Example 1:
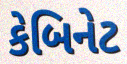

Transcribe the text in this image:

કેબિનેટ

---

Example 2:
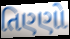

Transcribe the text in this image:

તિણ્ણો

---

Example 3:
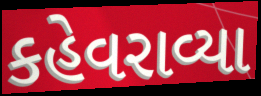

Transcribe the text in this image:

કહેવરાવ્યા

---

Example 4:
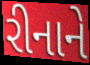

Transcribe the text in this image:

રીનાને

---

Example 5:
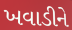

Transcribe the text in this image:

ખવાડીને